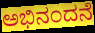
ಅಭಿನಂದನೆ